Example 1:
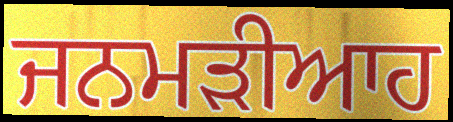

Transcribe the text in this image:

ਜਨਮੜੀਆਹ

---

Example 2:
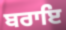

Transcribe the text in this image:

ਬਰਾਇ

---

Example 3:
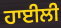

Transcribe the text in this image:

ਹਾਈਲੀ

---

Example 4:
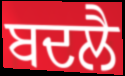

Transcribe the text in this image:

ਬਦਲੈ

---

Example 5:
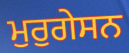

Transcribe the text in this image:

ਮੁਰੁਗੇਸਨ